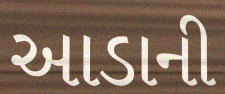
આડાની